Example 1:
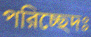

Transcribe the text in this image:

পরিচ্ছেদঃ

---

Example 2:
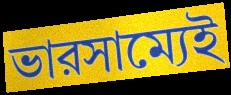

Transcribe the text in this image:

ভারসাম্যেই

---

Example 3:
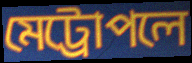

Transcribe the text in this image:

মেট্রোপলে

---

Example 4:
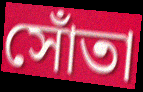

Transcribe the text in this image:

সোঁতা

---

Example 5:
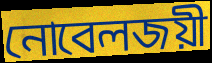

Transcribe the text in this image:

নোবেলজয়ী